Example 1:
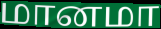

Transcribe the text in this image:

மானமா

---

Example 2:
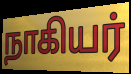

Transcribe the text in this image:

நாகியர்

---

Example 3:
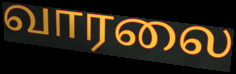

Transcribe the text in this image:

வாரலை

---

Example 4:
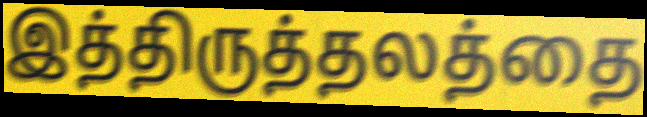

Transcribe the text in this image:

இத்திருத்தலத்தை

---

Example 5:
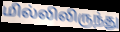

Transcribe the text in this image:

மில்லிலிருந்து